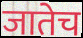
जातेच